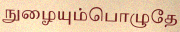
நுழையும்பொழுதே